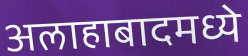
अलाहाबादमध्ये